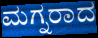
ಮಗ್ನರಾದ